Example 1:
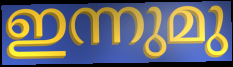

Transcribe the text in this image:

ഇന്നുമു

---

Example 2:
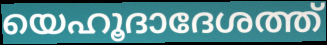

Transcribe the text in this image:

യെഹൂദാദേശത്ത്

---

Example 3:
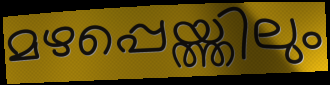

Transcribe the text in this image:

മഴപ്പെയ്ത്തിലും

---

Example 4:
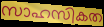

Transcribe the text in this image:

സാഹസികത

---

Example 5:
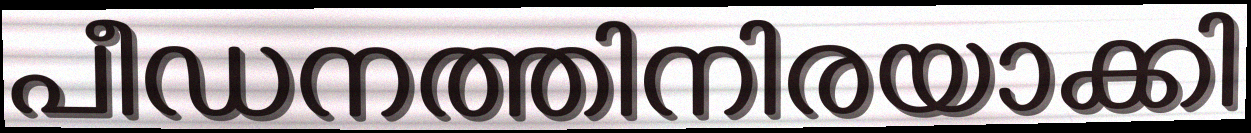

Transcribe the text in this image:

പീഡനത്തിനിരയാക്കി